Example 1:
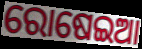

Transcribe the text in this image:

ରୋଷେଇଆ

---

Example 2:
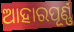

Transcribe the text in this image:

ଆହାରପୂର୍ଣ୍ଣ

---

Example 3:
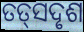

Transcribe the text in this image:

ତତ୍‌ସଦୃଶ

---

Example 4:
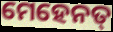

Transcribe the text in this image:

ମେହେନତ୍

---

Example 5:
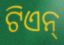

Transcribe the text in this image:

ଟିଏନ୍